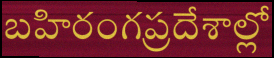
బహిరంగప్రదేశాల్లో